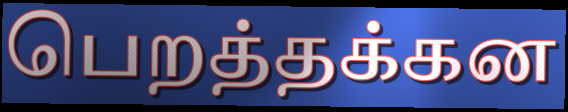
பெறத்தக்கன